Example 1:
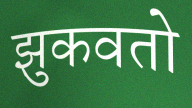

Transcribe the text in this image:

झुकवतो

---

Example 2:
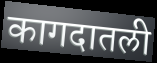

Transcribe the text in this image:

कागदातली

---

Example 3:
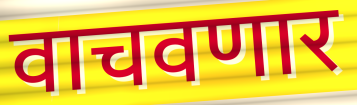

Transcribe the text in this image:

वाचवणार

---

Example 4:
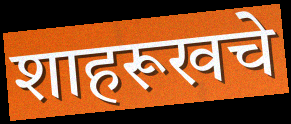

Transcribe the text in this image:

शाहरूखचे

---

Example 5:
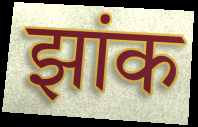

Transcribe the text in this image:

झांक